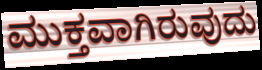
ಮುಕ್ತವಾಗಿರುವುದು